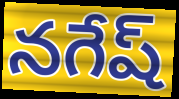
నగేష్